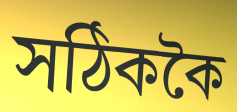
সঠিককৈ